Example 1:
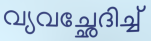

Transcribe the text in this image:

വ്യവച്ഛേദിച്ച്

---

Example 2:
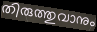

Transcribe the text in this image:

തിരുത്തുവാനും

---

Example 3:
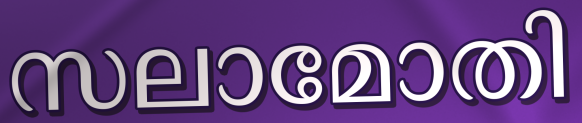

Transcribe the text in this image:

സലാമോതി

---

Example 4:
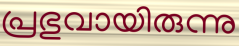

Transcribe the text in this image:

പ്രഭുവായിരുന്നു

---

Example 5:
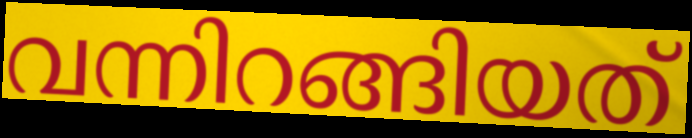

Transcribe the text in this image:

വന്നിറങ്ങിയത്